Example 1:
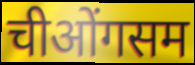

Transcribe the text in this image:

चीओंगसम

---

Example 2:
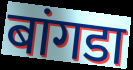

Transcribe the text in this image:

बांगडा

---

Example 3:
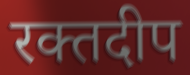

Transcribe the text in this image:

रक्तदीप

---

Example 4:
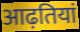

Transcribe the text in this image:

आढ़तियां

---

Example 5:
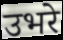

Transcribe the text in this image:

उभरे